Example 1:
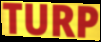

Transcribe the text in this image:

TURP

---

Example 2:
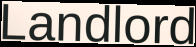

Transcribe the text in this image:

Landlord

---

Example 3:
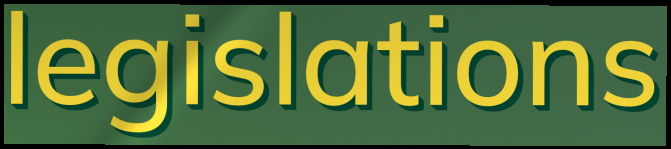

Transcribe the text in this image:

legislations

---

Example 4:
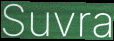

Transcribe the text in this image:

Suvra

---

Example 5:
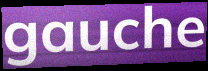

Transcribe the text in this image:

gauche